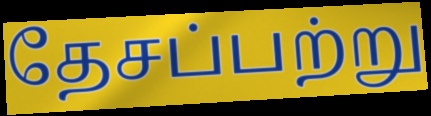
தேசப்பற்று